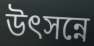
উৎসন্নে